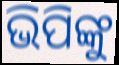
ଭିପିଙ୍କୁ